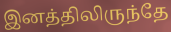
இனத்திலிருந்தே